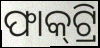
ଫାକ୍‍ଟ୍ରି